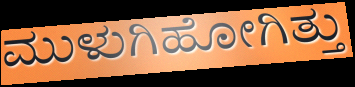
ಮುಳುಗಿಹೋಗಿತ್ತು